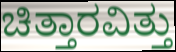
ಚಿತ್ತಾರವಿತ್ತು